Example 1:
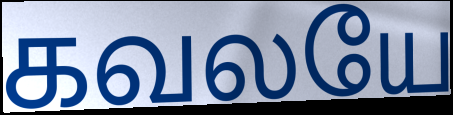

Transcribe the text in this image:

கவலயே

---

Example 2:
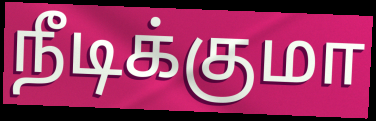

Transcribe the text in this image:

நீடிக்குமா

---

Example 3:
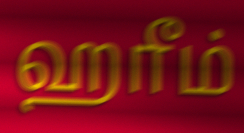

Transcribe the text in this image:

ஹரீம்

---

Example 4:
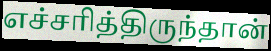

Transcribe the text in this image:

எச்சரித்திருந்தான்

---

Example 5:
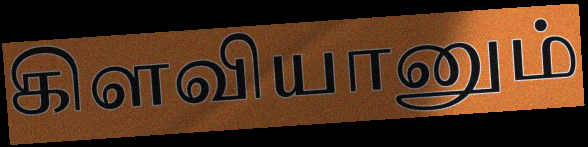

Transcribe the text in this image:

கிளவியானும்